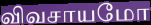
விவசாயமோ